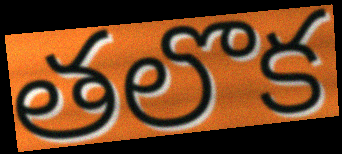
తలొక